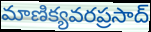
మాణిక్యవరప్రసాద్